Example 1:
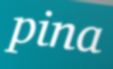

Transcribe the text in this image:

pina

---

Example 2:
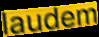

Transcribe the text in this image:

laudem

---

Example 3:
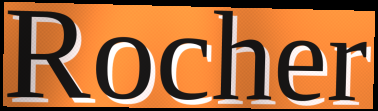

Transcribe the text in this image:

Rocher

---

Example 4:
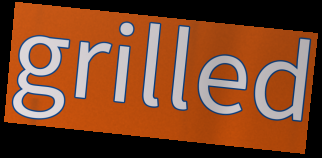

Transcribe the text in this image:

grilled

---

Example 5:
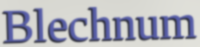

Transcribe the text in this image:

Blechnum